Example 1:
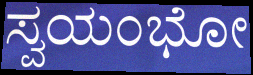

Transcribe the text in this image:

ಸ್ವಯಂಭೋ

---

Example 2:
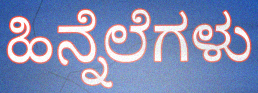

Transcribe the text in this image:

ಹಿನ್ನೆಲೆಗಳು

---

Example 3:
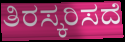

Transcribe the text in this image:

ತಿರಸ್ಕರಿಸದೆ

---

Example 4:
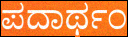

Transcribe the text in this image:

ಪದಾರ್ಥಂ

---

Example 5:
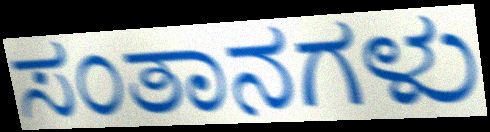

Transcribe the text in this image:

ಸಂತಾನಗಳು